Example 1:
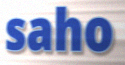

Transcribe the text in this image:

saho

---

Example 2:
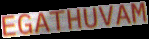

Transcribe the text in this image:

EGATHUVAM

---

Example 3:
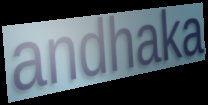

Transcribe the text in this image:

andhaka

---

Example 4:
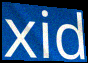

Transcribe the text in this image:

xid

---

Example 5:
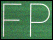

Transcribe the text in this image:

FP